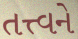
તત્ત્વને